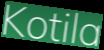
Kotila